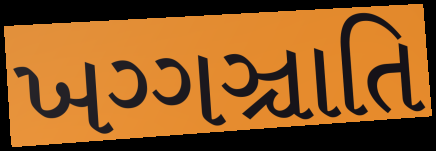
ખગ્ગઞ્ચાતિ